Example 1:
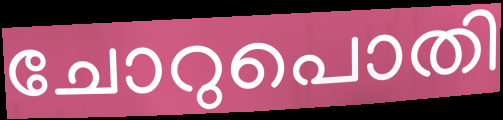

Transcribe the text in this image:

ചോറുപൊതി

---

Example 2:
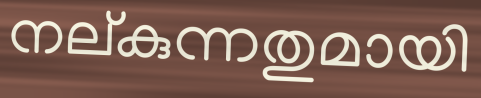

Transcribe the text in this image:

നല്കുന്നതുമായി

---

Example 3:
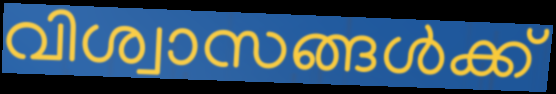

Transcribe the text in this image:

വിശ്വാസങ്ങൾക്ക്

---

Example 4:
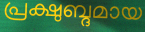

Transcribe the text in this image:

പ്രക്ഷുബ്ദമായ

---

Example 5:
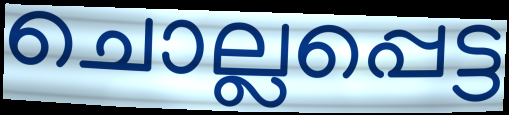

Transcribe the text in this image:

ചൊല്ലപ്പെട്ട